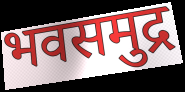
भवसमुद्र